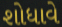
શોધાવે